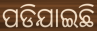
ପଡିଯାଇଛି